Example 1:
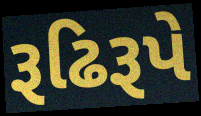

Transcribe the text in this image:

રૂઢિરૂપે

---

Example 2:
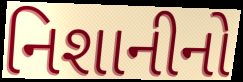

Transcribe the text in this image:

નિશાનીનો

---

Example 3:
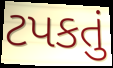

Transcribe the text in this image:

ટપકતું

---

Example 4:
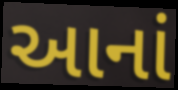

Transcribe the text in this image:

આનાં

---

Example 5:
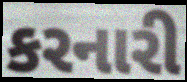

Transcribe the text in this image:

કરનારી